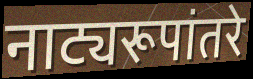
नाट्यरूपांतरे